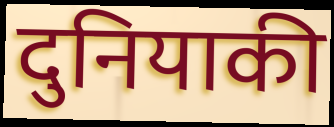
दुनियाकी